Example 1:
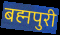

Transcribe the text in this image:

बह्मपुरी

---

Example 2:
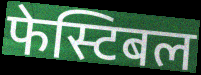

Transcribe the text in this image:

फेस्टिबल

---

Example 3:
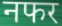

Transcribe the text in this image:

नफर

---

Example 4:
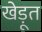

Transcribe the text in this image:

खेड़ूत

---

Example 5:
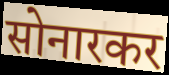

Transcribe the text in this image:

सोनारकर